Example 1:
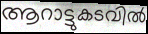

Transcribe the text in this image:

ആറാട്ടുകടവിൽ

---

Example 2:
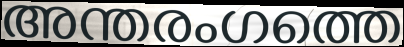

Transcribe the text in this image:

അന്തരംഗത്തെ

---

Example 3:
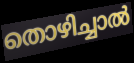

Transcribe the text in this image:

തൊഴിച്ചാൽ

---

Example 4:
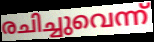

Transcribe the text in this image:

രചിച്ചുവെന്ന്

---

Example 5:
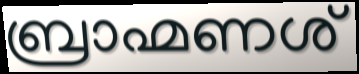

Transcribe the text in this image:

ബ്രാഹ്മണശ്